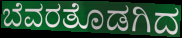
ಬೆವರತೊಡಗಿದ